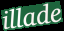
illade